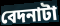
বেদনাটা